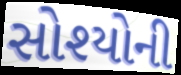
સોશ્યોની